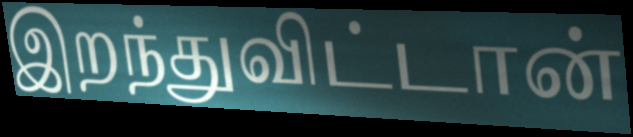
இறந்துவிட்டான்